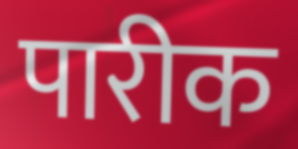
पारीक